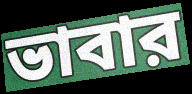
ভাবার